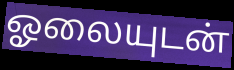
ஓலையுடன்